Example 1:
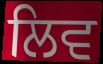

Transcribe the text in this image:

ਲਿਵ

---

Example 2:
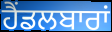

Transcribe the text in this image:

ਹੈਂਡਲਬਾਰਾਂ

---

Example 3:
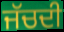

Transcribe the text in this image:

ਜੱਚਦੀ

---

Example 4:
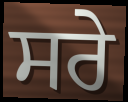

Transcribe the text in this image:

ਸਰੇ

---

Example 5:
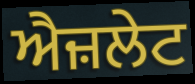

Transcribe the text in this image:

ਐਜ਼ਲੇਟ